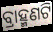
ବ୍ରାହ୍ମଣଟି